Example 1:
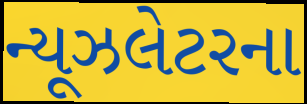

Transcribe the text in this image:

ન્યૂઝલેટરના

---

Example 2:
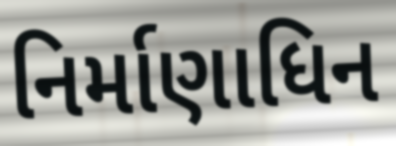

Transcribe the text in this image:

નિર્માણાધિન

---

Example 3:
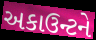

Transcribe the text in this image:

અકાઉન્ટને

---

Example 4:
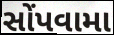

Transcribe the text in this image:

સોંપવામા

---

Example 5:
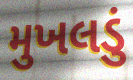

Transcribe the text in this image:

મુખલડું